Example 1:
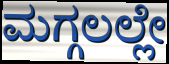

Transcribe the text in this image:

ಮಗ್ಗಲಲ್ಲೇ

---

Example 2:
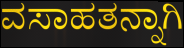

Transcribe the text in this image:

ವಸಾಹತನ್ನಾಗಿ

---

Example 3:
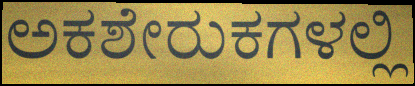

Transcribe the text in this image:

ಅಕಶೇರುಕಗಳಲ್ಲಿ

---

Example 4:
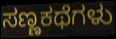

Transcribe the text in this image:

ಸಣ್ಣಕಥೆಗಳು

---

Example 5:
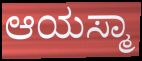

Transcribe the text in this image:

ಆಯಸ್ಮಾ